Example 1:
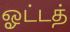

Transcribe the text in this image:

ஓட்டத்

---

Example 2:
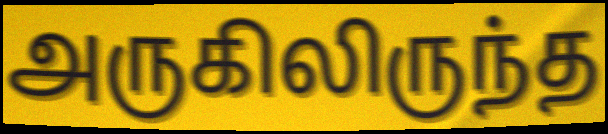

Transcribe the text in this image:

அருகிலிருந்த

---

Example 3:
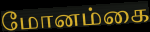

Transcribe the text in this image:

மோனம்கை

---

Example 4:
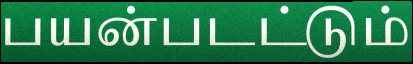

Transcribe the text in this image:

பயன்படட்டும்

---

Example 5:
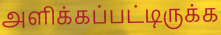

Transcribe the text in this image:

அளிக்கப்பட்டிருக்க